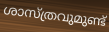
ശാസ്ത്രവുമുണ്ട്